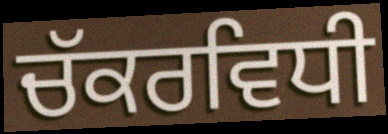
ਚੱਕਰਵਿਧੀ